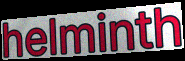
helminth